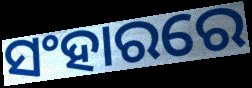
ସଂହାରରେ